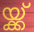
യ്ക്ക്